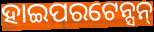
ହାଇପରଟେନ୍ସନ୍